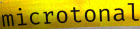
microtonal